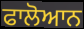
ਫਾਲੋਆਨ